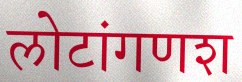
लोटांगणश